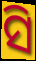
ସି